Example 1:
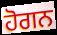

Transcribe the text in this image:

ਹੋਗਨ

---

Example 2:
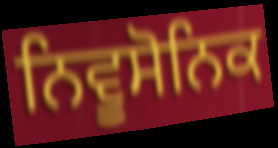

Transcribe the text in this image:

ਨਿਵੂਸੋਨਿਕ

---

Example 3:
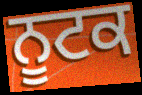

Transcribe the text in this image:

ਨੂਟਕ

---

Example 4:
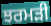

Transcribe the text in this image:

ਝਰਮੜੀ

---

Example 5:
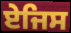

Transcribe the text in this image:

ਏਜਿਸ